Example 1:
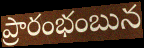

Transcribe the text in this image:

ప్రారంభంబున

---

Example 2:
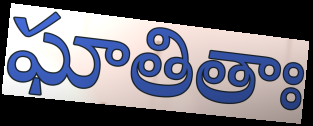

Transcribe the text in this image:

ఘాతితాః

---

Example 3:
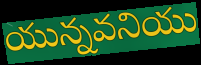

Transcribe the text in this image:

యున్నవనియు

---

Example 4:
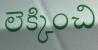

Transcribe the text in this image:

లెక్కించి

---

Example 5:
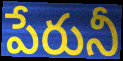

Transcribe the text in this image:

పేరునీ